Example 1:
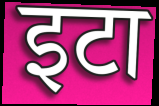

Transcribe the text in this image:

इटा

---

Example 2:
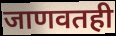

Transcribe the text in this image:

जाणवतही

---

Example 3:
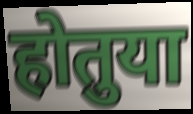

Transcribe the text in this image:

होतुया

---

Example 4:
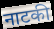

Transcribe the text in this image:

नाटकी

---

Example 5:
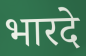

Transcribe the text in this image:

भारदे